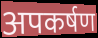
अपकर्षण